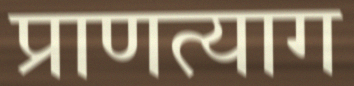
प्राणत्याग